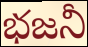
భజనీ